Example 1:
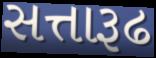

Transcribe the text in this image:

સત્તારૂઢ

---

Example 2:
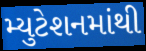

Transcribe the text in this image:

મ્યુટેશનમાંથી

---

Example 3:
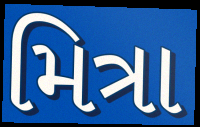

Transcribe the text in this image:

મિત્રા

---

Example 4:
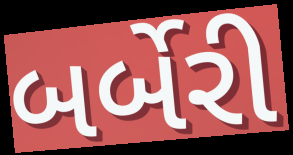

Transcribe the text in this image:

બર્બેરી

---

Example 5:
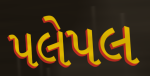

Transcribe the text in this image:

પલેપલ